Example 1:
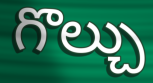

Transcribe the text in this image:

గొల్చు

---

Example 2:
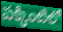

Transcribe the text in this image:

పక్కింటిలో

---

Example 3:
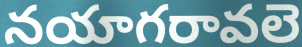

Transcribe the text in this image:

నయాగరావలె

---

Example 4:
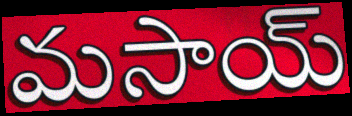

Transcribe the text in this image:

మసాయ్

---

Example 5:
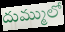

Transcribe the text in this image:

దుమ్ములో